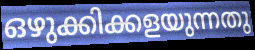
ഒഴുക്കിക്കളയുന്നതു